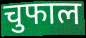
चुफाल